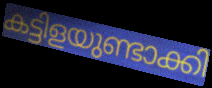
കട്ടിളയുണ്ടാക്കി